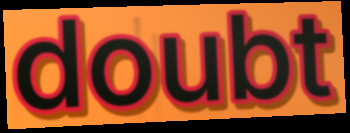
doubt